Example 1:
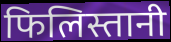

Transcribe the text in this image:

फिलिस्तानी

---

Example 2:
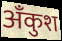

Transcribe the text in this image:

अँकुश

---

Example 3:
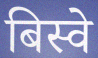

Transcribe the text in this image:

बिस्वे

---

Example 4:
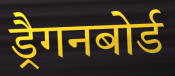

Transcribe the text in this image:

ड्रैगनबोर्ड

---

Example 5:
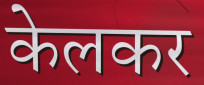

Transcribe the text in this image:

केलकर